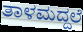
ತಾಳಮದ್ದಲೆ